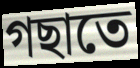
গছাতে